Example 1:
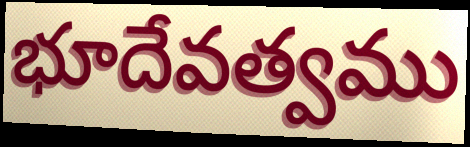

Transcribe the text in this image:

భూదేవత్వము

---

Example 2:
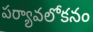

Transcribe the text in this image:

పర్యావలోకనం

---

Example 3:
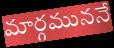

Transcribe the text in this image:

మార్గముననే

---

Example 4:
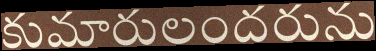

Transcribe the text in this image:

కుమారులందరును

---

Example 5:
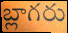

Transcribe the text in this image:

బ్లాగరు